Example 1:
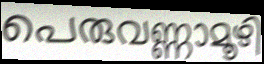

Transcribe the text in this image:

പെരുവണ്ണാമൂഴി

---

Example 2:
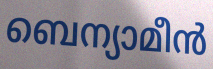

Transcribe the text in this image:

ബെന്യാമീൻ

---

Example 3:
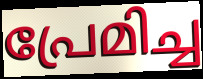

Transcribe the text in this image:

പ്രേമിച്ച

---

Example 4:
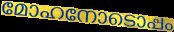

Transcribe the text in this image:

മോഹനോടൊപ്പം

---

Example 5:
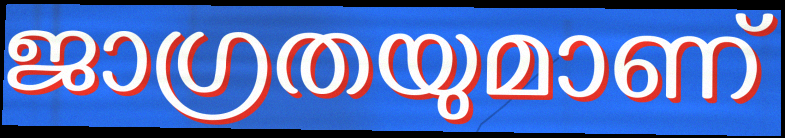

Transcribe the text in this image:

ജാഗ്രതയുമാണ്